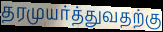
தரமுயர்த்துவதற்கு